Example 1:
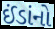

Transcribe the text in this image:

ઈંડાંનો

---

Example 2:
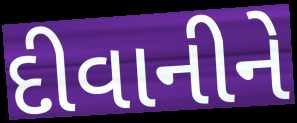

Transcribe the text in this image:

દીવાનીને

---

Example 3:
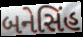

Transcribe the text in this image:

બનેસિંહ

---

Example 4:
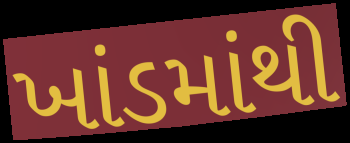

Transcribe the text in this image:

ખાંડમાંથી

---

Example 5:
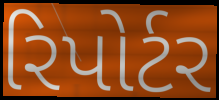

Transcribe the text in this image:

રિપોર્ટર